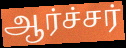
ஆர்ச்சர்